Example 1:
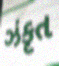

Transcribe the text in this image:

ઝંકૃત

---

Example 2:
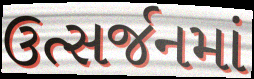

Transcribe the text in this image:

ઉત્સર્જનમાં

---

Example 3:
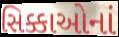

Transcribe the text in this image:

સિક્કાઓનાં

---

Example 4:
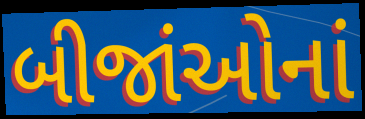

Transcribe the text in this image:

બીજાંઓનાં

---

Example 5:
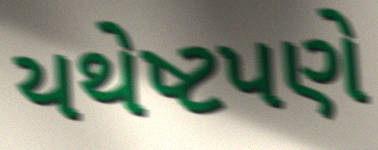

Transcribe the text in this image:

યથેષ્ટપણે